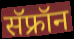
सॅफ्रॉन